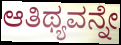
ಆತಿಥ್ಯವನ್ನೇ